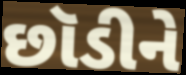
છૉડીને